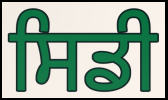
ਸਿਡੀ